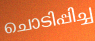
ചൊടിപ്പിച്ച